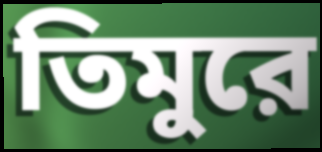
তিমুরে